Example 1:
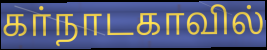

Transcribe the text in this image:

கர்நாடகாவில்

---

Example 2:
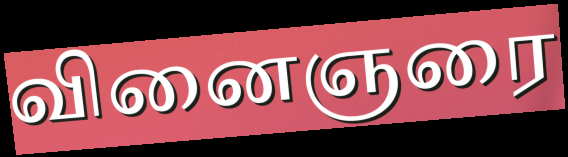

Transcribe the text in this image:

வினைஞரை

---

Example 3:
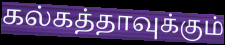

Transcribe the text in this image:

கல்கத்தாவுக்கும்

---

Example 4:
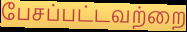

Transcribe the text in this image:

பேசப்பட்டவற்றை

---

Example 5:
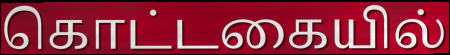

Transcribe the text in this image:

கொட்டகையில்